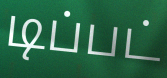
டிப்பட்